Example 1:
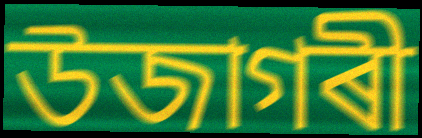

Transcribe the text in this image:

উজাগৰী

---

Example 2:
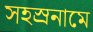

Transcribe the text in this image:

সহস্ৰনামে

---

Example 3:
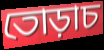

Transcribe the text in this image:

তোড়াচ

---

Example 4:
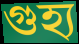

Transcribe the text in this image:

গুহ্য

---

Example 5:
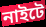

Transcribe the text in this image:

নাইটে